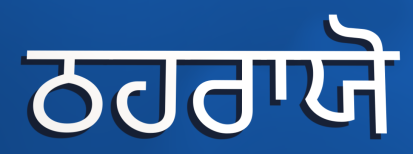
ਠਹਰਾਯੋ